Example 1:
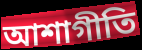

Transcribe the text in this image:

আশাগীতি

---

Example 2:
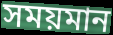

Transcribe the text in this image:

সময়মান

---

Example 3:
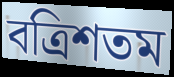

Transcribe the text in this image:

বত্রিশতম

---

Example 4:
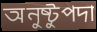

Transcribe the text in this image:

অনুষ্টুপদা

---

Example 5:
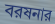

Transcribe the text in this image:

বরষনার